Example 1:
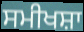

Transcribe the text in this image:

ਸਮੀਖਸ਼ਾ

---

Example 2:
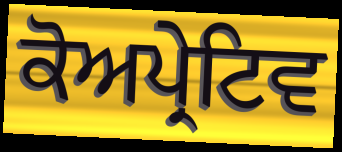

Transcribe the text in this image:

ਕੋਅਪ੍ਰੇਟਿਵ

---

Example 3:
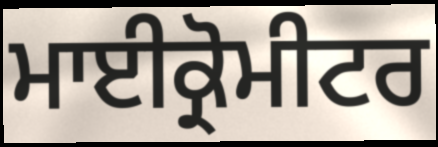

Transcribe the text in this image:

ਮਾਈਕ੍ਰੋਮੀਟਰ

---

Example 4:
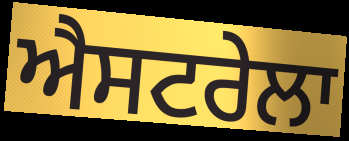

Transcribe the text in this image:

ਐਸਟਰੇਲਾ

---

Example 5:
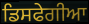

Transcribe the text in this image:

ਡਿਸਫੇਗੀਆ